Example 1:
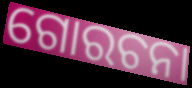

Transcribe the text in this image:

ଗୋରଚନା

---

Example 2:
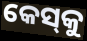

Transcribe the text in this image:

କେସ୍‌କୁ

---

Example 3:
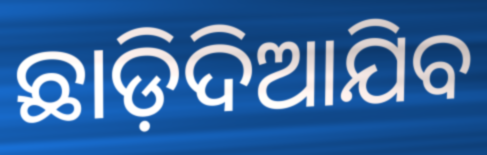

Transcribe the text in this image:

ଛାଡ଼ିଦିଆଯିବ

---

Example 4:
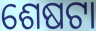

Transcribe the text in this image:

ଶେଷଟା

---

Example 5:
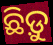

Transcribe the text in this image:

ଛିଡ଼ୁ